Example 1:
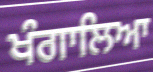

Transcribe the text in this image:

ਖੰਗਾਲਿਆ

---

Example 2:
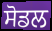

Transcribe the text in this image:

ਸੋਡਲ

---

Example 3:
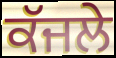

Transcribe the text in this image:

ਕੱਜਲੇ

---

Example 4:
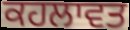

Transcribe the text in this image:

ਕਹਲਾਵਤ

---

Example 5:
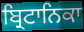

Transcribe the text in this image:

ਬ੍ਰਿਟਾਨਿਕਾ